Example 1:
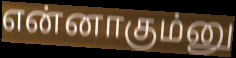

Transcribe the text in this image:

என்னாகும்னு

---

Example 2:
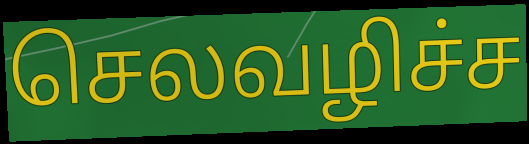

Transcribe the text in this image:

செலவழிச்ச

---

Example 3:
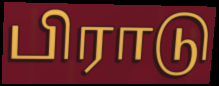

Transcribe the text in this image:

பிராடு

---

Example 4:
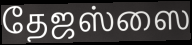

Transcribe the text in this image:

தேஜஸ்ஸை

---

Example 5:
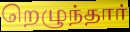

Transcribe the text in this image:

றெழுந்தார்